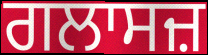
ਗਲਾਸਜ਼